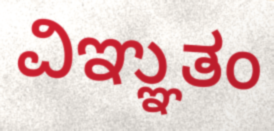
ವಿಞ್ಞುತಂ